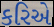
કરિએ